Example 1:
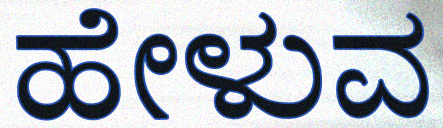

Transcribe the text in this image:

ಹೇಳುವ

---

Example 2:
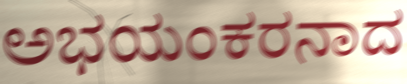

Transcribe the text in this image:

ಅಭಯಂಕರನಾದ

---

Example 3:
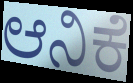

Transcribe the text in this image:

ಆನಿಕೆ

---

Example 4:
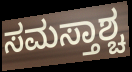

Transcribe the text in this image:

ಸಮಸ್ತಾಶ್ಚ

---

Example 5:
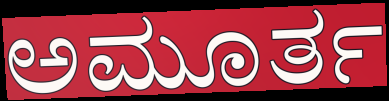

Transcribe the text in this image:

ಅಮೂರ್ತ